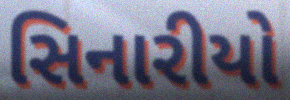
સિનારીયો